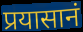
प्रयासानं